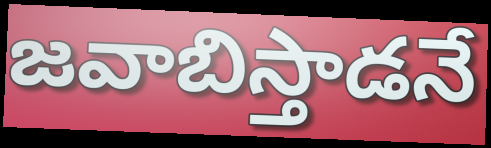
జవాబిస్తాడనే